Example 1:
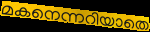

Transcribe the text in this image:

മകനെന്നറിയാതെ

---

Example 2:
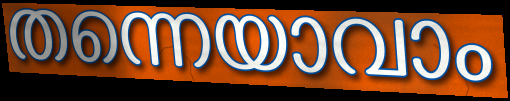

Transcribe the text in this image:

തന്നെയാവാം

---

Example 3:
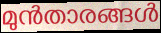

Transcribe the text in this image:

മുൻതാരങ്ങൾ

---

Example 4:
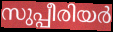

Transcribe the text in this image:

സുപ്പീരിയർ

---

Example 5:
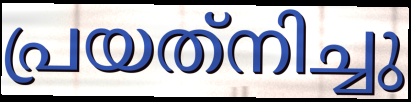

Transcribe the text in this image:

പ്രയത്‌നിച്ചു